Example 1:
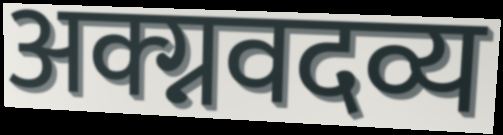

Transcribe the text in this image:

अक्ग्नवदव्य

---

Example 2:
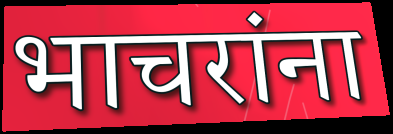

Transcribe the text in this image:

भाचरांना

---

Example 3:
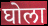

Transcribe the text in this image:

घोला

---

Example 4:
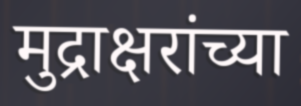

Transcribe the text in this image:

मुद्राक्षरांच्या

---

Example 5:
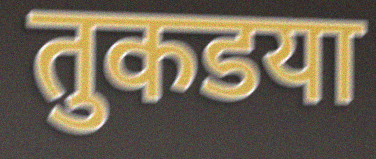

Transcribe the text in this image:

तुकडया